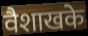
वैशाखके